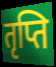
तृप्ति